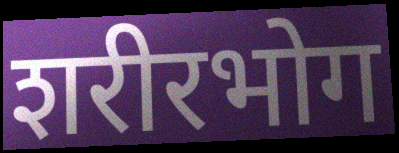
शरीरभोग